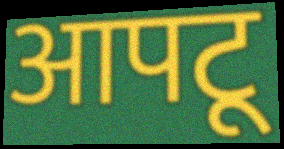
आपटू